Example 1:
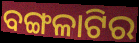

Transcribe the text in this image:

ବଙ୍ଗଳାଟିର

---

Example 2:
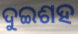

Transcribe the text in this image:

ଦୁଇଶହ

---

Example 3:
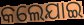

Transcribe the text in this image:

କଲେଯାଇ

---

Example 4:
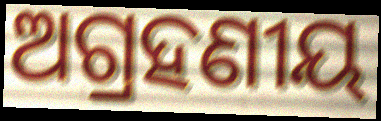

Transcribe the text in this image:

ଅଗ୍ରହଣୀୟ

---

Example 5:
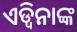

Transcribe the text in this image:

ଏଡ୍ୱିନାଙ୍କ